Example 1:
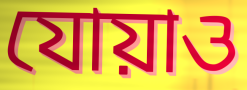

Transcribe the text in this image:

যোয়াও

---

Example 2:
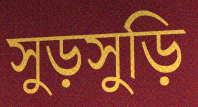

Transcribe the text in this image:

সুড়সুড়ি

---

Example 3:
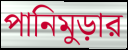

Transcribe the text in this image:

পানিমুড়ার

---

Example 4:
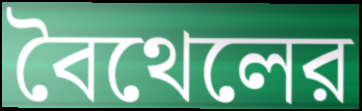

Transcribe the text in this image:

বৈথেলের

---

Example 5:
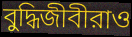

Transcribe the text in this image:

বুদ্ধিজীবীরাও